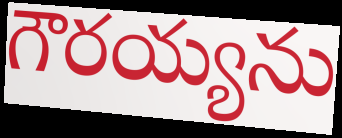
గౌరయ్యను